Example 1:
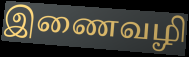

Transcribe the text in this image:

இணைவழி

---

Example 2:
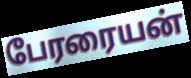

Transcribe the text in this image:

பேரரையன்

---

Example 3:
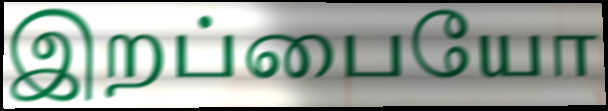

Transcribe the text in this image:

இறப்பையோ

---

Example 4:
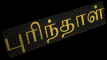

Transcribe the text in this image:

புரிந்தாள்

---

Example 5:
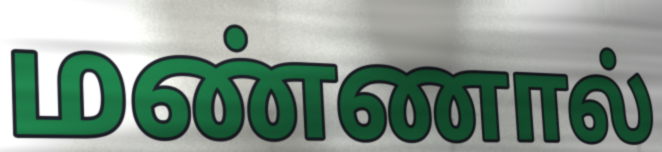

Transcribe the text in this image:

மண்ணால்